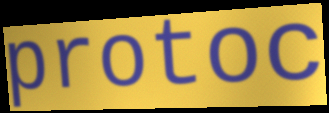
protoc